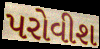
પરોવીશ